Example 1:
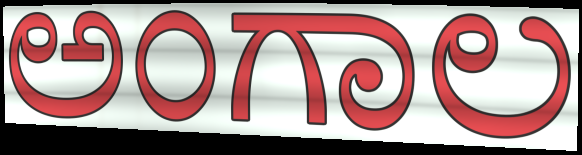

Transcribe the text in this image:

ಅಂಗಾಲ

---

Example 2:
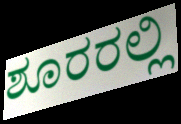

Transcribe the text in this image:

ಶೂರರಲ್ಲಿ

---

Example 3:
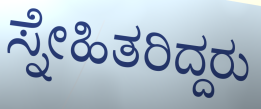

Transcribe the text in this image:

ಸ್ನೇಹಿತರಿದ್ದರು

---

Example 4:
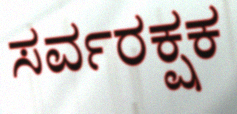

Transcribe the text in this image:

ಸರ್ವರಕ್ಷಕ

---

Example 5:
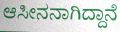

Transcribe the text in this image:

ಆಸೀನನಾಗಿದ್ದಾನೆ